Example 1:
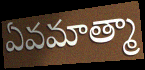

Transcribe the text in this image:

ఏవమాత్మా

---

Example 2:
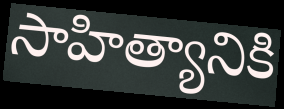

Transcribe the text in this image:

సాహిత్యానికి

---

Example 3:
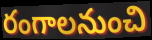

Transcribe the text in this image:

రంగాలనుంచి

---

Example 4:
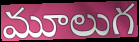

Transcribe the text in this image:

మూలుగ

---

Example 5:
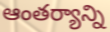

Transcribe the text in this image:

ఆంతర్యాన్ని